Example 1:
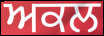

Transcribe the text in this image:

ਅਕਲ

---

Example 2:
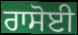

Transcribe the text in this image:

ਰਾਸੋਈ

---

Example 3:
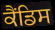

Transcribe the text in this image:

ਕੈਂਡਿਸ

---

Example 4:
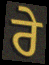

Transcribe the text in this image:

ਰੇ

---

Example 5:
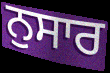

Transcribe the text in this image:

ਨੁਸਾਰ